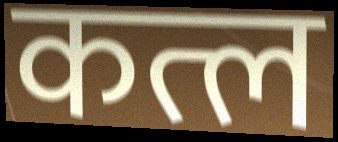
कत्ल